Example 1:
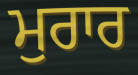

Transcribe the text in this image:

ਮੁਰਾਰ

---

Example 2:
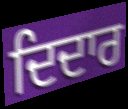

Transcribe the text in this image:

ਦਿਦਾਰ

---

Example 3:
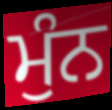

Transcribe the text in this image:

ਮੁੰਨ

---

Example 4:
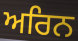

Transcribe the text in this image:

ਅਰਿਨ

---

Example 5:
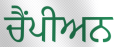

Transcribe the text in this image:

ਚੈਂਪੀਅਨ